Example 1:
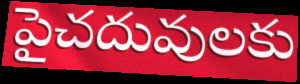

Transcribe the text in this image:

పైచదువులకు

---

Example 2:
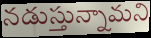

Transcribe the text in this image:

నడుస్తున్నామని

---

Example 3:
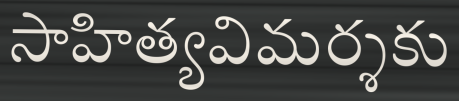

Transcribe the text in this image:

సాహిత్యవిమర్శకు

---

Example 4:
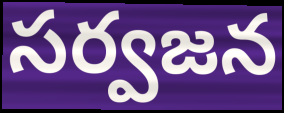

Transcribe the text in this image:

సర్వజన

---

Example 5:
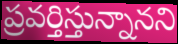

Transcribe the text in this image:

ప్రవర్తిస్తున్నానని